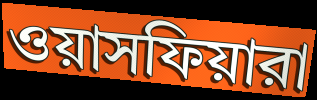
ওয়াসফিয়ারা